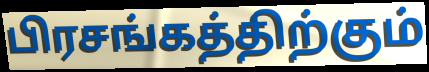
பிரசங்கத்திற்கும்